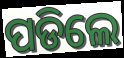
ପଡିଲେ